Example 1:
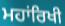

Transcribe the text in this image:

ਮਹਾਂਰਿਖੀ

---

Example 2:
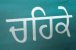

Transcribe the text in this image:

ਚਹਿਕੇ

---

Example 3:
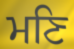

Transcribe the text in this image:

ਮਣਿ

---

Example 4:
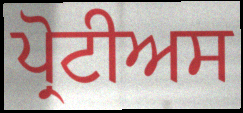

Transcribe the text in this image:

ਪ੍ਰੋਟੀਅਸ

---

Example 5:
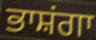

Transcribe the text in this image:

ਭਾਸ਼ਂਗਾ